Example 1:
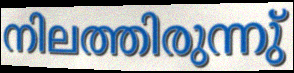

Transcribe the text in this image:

നിലത്തിരുന്നു്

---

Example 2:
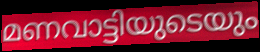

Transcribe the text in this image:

മണവാട്ടിയുടെയും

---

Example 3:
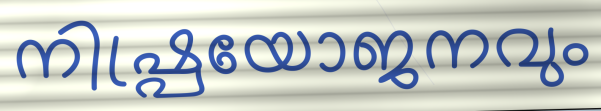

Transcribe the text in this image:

നിഷ്പ്രയോജനവും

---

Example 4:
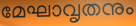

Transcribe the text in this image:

മേഘാവൃതനും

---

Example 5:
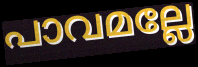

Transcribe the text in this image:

പാവമല്ലേ